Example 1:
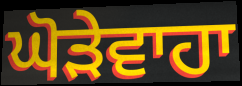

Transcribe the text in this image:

ਘੋੜੇਵਾਹਾ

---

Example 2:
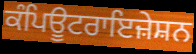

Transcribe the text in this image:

ਕੰਪਿਊਟਰਾਇਜ਼ੇਸ਼ਨ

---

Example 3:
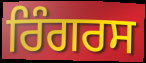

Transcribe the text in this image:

ਰਿੰਗਰਸ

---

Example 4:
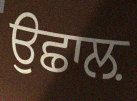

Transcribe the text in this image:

ਉਛਾਲ਼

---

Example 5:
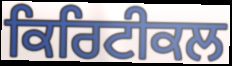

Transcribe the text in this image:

ਕਿਰਿਟੀਕਲ